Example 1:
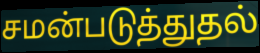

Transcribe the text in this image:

சமன்படுத்துதல்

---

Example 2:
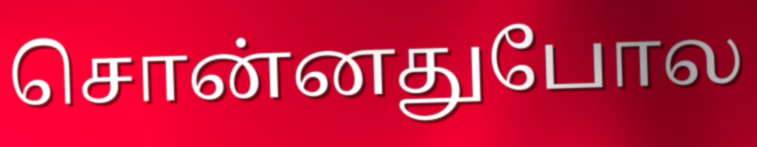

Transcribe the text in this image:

சொன்னதுபோல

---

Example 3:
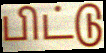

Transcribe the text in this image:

பிட்டு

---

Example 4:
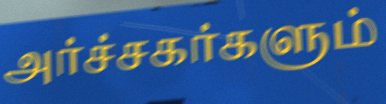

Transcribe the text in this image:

அர்ச்சகர்களும்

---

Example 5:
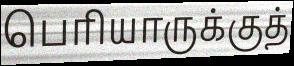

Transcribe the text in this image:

பெரியாருக்குத்